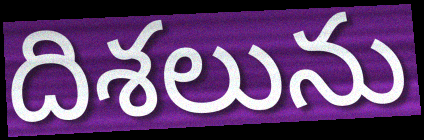
దిశలును